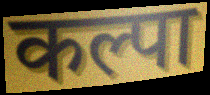
कल्पा